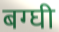
बग्घी